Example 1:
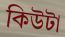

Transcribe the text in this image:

কিউটা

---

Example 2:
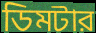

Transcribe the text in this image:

ডিমটার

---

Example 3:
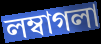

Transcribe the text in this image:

লম্বাগলা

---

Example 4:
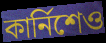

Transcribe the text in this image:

কার্নিশেও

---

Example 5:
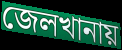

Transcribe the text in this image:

জেলখানায়